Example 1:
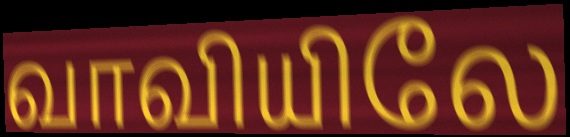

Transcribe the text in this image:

வாவியிலே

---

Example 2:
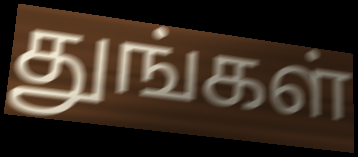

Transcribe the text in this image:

துங்கள்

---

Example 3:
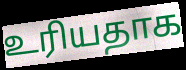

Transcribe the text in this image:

உரியதாக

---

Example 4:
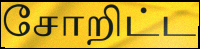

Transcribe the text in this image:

சோறிட்ட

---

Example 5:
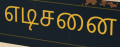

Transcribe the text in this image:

எடிசனை